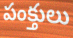
పంక్తులు